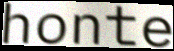
honte